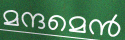
മന്ദമെൻ